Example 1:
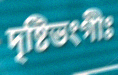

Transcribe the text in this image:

দৃষ্টিভংগীঃ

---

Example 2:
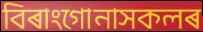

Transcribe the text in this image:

বিৰাংগোনাসকলৰ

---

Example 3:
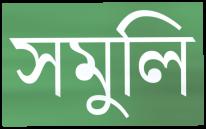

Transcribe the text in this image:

সমুলি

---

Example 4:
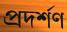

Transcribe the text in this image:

প্ৰদৰ্শণ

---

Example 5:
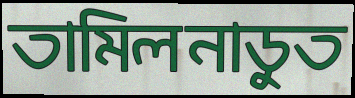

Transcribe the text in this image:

তামিলনাডুত